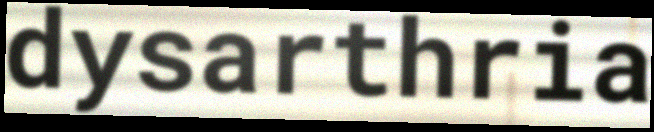
dysarthria